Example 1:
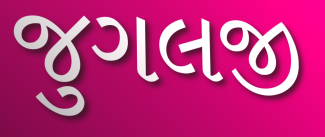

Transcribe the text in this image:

જુગલજી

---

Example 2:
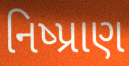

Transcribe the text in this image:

નિષ્પ્રાણ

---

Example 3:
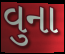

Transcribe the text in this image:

વુના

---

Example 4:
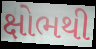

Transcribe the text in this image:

ક્ષોભથી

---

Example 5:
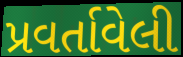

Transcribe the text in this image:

પ્રવર્તાવેલી